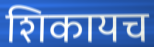
शिकायच